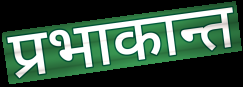
प्रभाकान्त